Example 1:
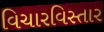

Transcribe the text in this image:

વિચારવિસ્તાર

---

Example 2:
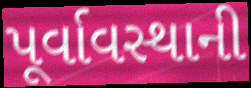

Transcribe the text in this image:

પૂર્વાવસ્થાની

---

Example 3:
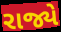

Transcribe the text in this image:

રાજ્યે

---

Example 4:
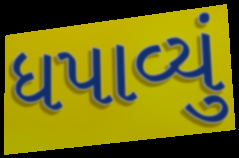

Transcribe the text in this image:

ધપાવ્યું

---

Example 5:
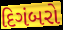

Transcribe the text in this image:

દિગંબરો